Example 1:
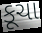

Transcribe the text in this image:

કૂચા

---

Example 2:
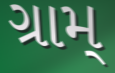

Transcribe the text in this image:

ગ્રામ્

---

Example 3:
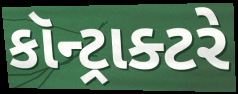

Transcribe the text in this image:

કૉન્ટ્રાક્ટરે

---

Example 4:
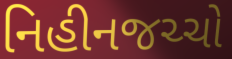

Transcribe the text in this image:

નિહીનજચ્ચો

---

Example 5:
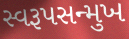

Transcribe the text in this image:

સ્વરૂપસન્મુખ